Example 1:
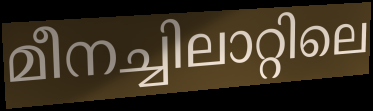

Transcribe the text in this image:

മീനച്ചിലാറ്റിലെ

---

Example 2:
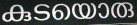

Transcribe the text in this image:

കുടയൊരു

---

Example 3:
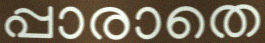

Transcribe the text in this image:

പ്പാരാതെ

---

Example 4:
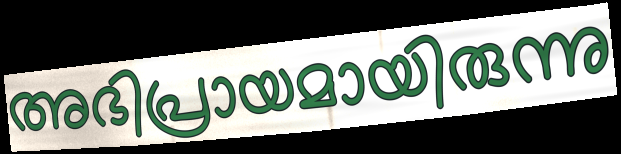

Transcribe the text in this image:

അഭിപ്രായമായിരുന്നു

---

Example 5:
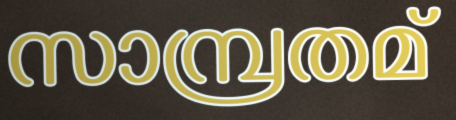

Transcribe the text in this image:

സാമ്പ്രതമ്